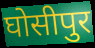
घोसीपुर